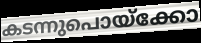
കടന്നുപൊയ്ക്കോ